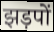
झड़पों